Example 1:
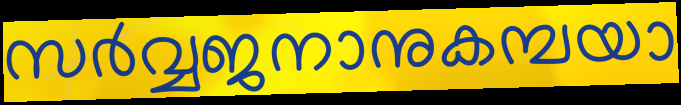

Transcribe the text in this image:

സർവ്വജനാനുകമ്പയാ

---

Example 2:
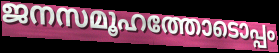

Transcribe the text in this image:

ജനസമൂഹത്തോടൊപ്പം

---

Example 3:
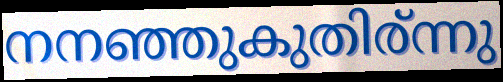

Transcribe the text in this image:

നനഞ്ഞുകുതിര്ന്നു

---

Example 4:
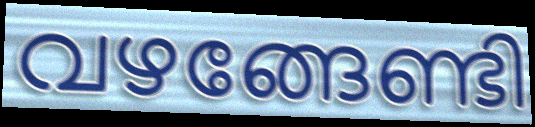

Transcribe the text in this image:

വഴങ്ങേണ്ടി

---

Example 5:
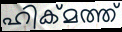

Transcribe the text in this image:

ഹിക്മത്ത്